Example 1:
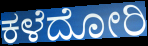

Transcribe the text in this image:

ಕಳೆದೋರಿ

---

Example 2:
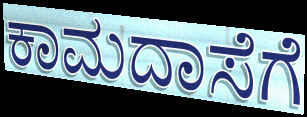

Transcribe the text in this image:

ಕಾಮದಾಸೆಗೆ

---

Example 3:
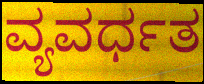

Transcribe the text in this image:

ವ್ಯವರ್ಧತ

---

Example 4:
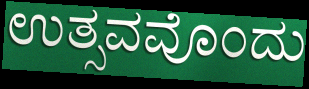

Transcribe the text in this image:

ಉತ್ಸವವೊಂದು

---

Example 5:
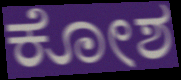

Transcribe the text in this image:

ಕೋಶ